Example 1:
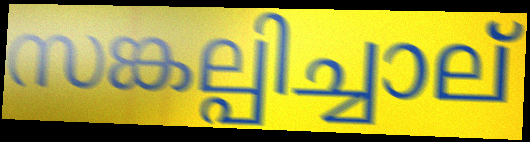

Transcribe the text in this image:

സങ്കല്പിച്ചാല്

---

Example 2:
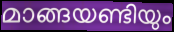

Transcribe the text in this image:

മാങ്ങയണ്ടിയും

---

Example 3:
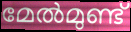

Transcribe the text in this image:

മേൽമുണ്ട്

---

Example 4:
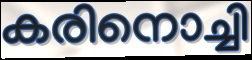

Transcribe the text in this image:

കരിനൊച്ചി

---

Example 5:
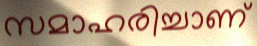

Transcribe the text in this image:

സമാഹരിച്ചാണ്